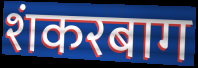
शंकरबाग